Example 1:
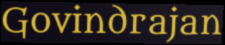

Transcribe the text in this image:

Govindrajan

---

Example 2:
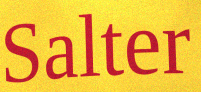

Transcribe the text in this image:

Salter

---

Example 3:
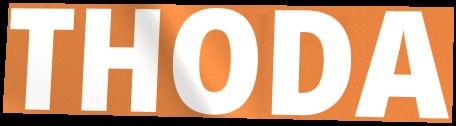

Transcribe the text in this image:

THODA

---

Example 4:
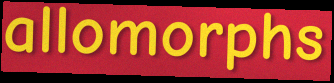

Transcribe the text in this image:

allomorphs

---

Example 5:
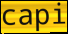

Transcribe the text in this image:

capi